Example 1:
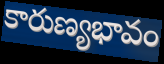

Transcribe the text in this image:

కారుణ్యభావం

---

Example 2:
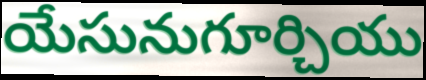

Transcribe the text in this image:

యేసునుగూర్చియు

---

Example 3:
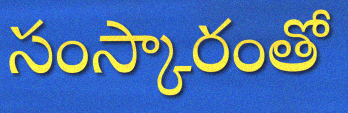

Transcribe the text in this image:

సంస్కారంతో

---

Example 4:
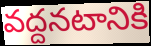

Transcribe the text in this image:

వద్దనటానికి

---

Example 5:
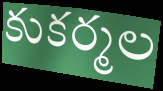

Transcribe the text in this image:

కుకర్మల